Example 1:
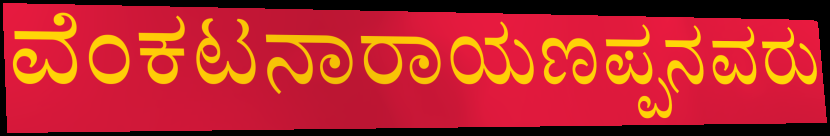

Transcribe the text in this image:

ವೆಂಕಟನಾರಾಯಣಪ್ಪನವರು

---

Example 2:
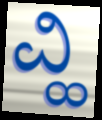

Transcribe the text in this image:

ವ್ಹಿ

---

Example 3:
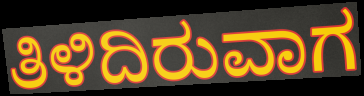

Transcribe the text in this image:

ತಿಳಿದಿರುವಾಗ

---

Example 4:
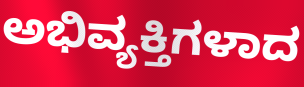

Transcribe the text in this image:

ಅಭಿವ್ಯಕ್ತಿಗಳಾದ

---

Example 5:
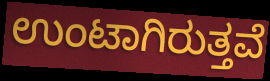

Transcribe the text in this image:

ಉಂಟಾಗಿರುತ್ತವೆ